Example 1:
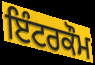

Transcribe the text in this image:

ਇੰਟਰਕੌਮ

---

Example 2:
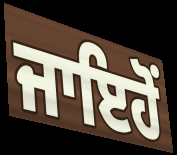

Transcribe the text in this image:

ਜਾਇਹੋਂ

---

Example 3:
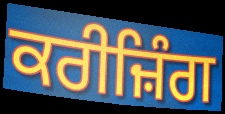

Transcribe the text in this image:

ਕਰੀਜ਼ਿੰਗ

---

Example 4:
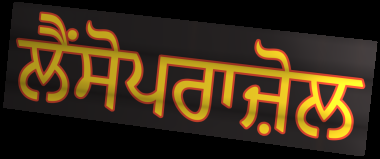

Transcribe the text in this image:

ਲੈਂਸੋਪਰਾਜ਼ੋਲ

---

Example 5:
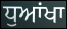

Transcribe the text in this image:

ਧੁਆਂਖਾ